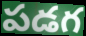
పడగ